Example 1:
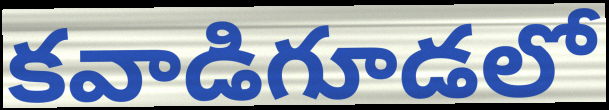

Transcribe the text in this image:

కవాడిగూడలో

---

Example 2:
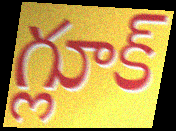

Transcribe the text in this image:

గ్లూక్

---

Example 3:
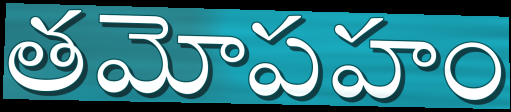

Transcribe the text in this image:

తమోపహం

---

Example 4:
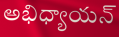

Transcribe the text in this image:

అభిధ్యాయన్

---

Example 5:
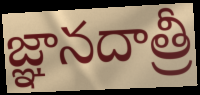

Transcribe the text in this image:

జ్ఞానదాత్రీ